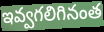
ఇవ్వగలిగినంత